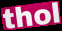
thol